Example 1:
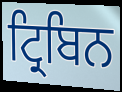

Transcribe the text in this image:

ਟ੍ਰਿਬਿਨ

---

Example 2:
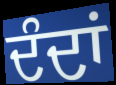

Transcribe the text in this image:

ਦੰਦਾਂ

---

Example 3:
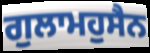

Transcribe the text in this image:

ਗੁਲਾਮਹੁਸੈਨ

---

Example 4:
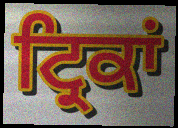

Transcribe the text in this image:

ਟ੍ਰਿਕਾਂ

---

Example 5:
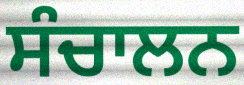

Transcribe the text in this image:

ਸੰਚਾਲਨ